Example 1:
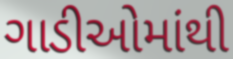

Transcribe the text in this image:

ગાડીઓમાંથી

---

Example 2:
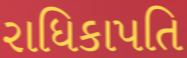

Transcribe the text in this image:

રાધિકાપતિ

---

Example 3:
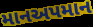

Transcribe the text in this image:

માનઅપમાન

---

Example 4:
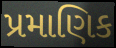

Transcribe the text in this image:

પ્રમાણિક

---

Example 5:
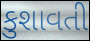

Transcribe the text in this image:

કુશાવતી